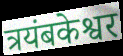
त्रयंबकेश्वर